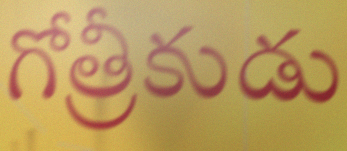
గోత్రీకుడు